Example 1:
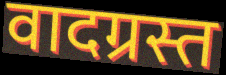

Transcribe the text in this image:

वादग्रस्त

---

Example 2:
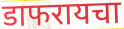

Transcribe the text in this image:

डाफरायचा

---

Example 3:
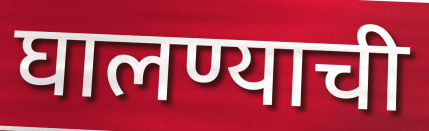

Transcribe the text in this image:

घालण्याची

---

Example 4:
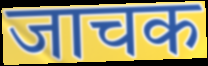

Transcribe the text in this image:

जाचक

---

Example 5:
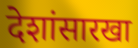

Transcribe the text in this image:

देशांसारखा